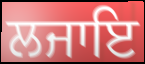
ਲਜਾਇ